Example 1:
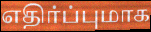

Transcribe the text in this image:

எதிர்ப்புமாக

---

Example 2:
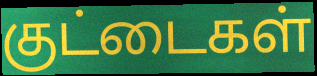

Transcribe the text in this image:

குட்டைகள்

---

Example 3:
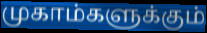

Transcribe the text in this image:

முகாம்களுக்கும்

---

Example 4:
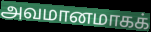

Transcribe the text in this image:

அவமானமாகக்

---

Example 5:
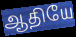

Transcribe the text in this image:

ஆதியே